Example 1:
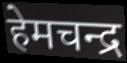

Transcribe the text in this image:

हेमचन्द्र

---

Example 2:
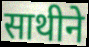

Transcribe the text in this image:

साथीने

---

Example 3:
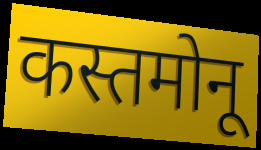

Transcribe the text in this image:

कस्तमोनू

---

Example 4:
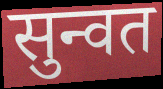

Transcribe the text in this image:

सुन्वत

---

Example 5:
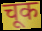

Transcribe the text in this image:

चूक